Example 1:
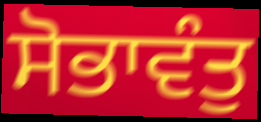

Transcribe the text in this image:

ਸੋਭਾਵੰਤੁ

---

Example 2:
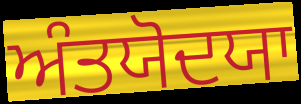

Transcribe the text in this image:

ਅੰਤਯੋਦਯਾ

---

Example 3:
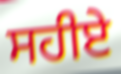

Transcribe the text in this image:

ਸਹੀਏ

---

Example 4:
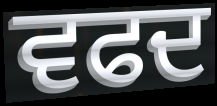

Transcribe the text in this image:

ਵਫਦ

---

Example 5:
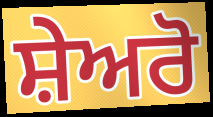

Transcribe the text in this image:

ਸ਼ੇਅਰੋ